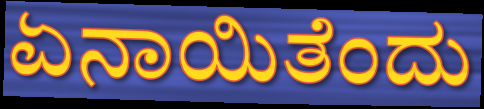
ಏನಾಯಿತೆಂದು